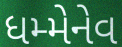
ધમ્મેનેવ